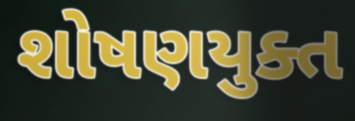
શોષણયુક્ત